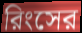
রিংসের